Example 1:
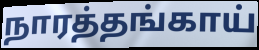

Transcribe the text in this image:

நாரத்தங்காய்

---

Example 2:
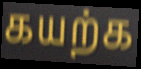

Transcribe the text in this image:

கயற்க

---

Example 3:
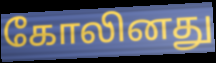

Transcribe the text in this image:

கோலினது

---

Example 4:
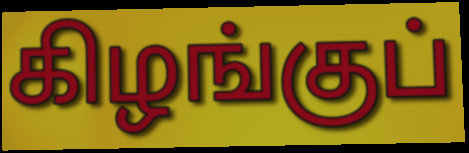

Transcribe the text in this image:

கிழங்குப்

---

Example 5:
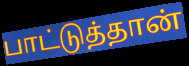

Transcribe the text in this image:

பாட்டுத்தான்